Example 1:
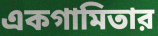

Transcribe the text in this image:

একগামিতার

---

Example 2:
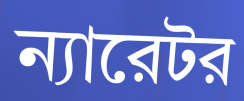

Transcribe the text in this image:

ন্যারেটর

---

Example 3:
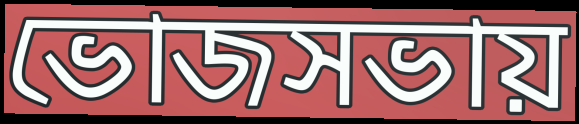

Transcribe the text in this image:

ভোজসভায়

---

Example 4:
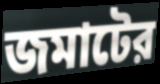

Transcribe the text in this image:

জমাটের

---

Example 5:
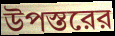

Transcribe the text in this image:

উপস্তরের